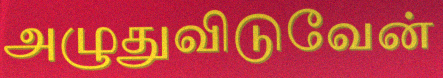
அழுதுவிடுவேன்